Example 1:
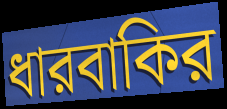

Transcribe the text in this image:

ধারবাকির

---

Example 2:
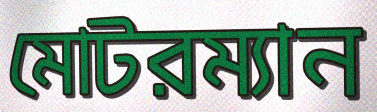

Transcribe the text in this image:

মোটরম্যান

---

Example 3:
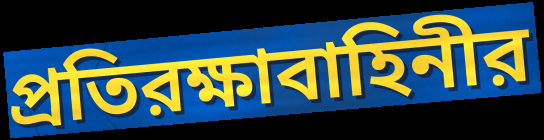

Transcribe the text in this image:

প্রতিরক্ষাবাহিনীর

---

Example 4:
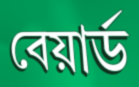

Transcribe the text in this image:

বেয়ার্ড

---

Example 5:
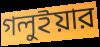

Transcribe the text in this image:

গলুইয়ার